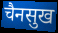
चैनसुख